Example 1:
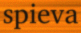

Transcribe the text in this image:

spieva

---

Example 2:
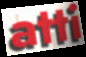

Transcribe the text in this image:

atti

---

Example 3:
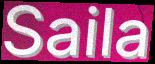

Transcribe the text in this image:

Saila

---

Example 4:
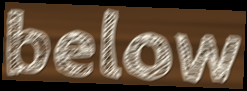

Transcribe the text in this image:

below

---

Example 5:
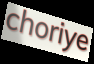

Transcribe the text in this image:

choriye